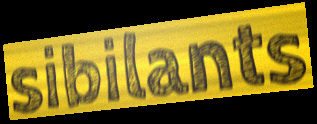
sibilants